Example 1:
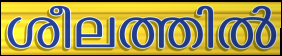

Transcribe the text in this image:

ശീലത്തിൽ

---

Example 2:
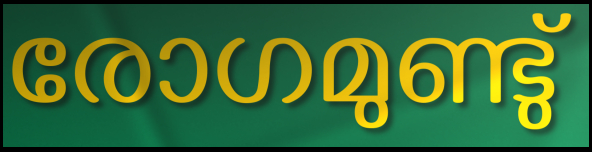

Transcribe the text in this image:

രോഗമുണ്ടു്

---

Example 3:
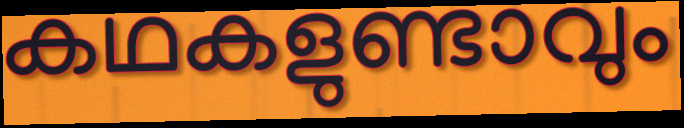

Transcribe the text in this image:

കഥകളുണ്ടാവും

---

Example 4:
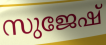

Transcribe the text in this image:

സുജേഷ്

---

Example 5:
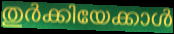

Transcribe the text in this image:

തുർക്കിയേക്കാൾ